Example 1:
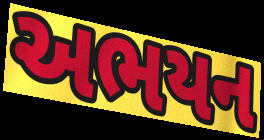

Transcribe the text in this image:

અભયન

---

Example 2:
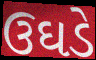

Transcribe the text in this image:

ઉઘડે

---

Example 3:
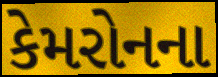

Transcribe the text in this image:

કેમરોનના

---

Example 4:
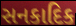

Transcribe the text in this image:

સનકાદિક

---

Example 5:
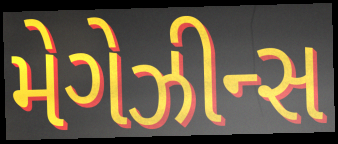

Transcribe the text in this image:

મેગેઝીન્સ